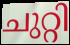
ചുറ്റി